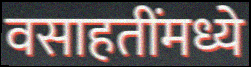
वसाहतींमध्ये